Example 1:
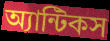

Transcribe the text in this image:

অ্যান্টিকস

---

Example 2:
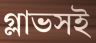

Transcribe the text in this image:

গ্লাভসই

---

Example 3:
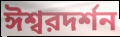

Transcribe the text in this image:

ঈশ্বরদর্শন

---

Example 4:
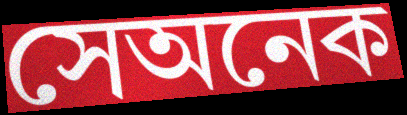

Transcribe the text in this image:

সেঅনেক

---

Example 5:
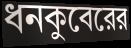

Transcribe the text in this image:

ধনকুবেরের